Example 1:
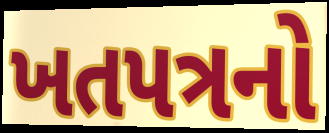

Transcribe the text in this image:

ખતપત્રનો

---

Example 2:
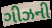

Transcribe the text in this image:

ગીઝની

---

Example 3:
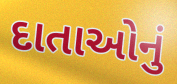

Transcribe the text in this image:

દાતાઓનું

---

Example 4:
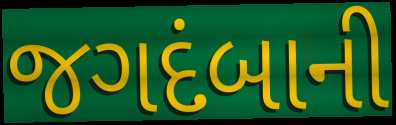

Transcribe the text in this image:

જગદંબાની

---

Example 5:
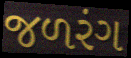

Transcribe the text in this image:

જળરંગ